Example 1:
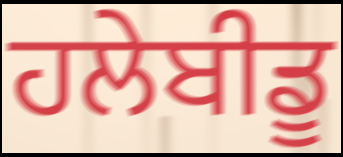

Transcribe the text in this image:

ਹਲੇਬੀਡੂ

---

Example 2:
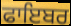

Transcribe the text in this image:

ਫਾਇਬਰ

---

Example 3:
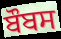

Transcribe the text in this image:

ਬੌਬਸ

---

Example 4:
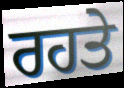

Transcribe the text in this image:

ਰਹਤੇ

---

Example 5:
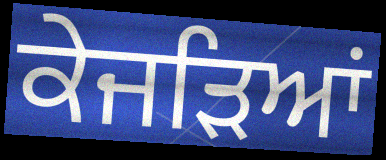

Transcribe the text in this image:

ਕੇਜੜਿਆਂ